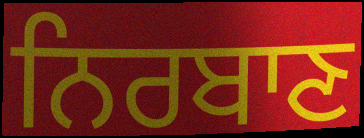
ਨਿਰਬਾਣ